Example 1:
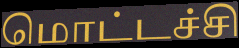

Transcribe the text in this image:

மொட்டச்சி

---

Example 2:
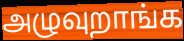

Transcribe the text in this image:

அழுவுறாங்க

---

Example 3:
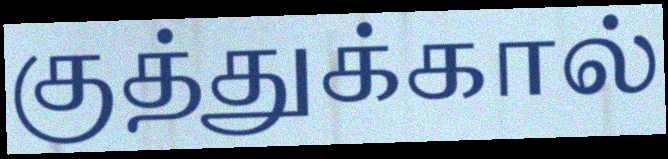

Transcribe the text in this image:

குத்துக்கால்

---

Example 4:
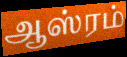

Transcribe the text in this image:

ஆஸ்ரம்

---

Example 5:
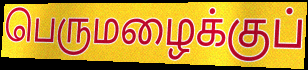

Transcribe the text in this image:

பெருமழைக்குப்